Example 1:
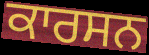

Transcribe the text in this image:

ਕਾਰਸਨ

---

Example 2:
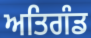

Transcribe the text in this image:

ਅਤਿਗੰਡ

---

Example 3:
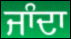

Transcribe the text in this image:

ਜਾੰਦਾ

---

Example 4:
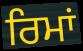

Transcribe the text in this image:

ਰਿਮਾਂ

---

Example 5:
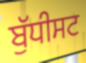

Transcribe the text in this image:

ਬੁੱਧੀਸਟ